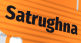
Satrughna